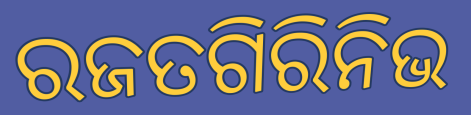
ରଜତଗିରିନିଭ